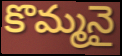
కొమ్మనై